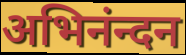
अभिनंन्दन